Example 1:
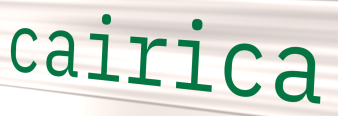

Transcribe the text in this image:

cairica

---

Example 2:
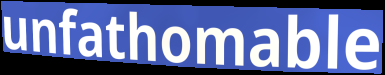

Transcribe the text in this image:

unfathomable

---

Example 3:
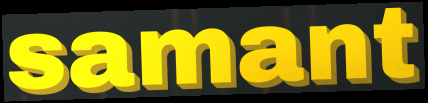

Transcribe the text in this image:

samant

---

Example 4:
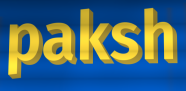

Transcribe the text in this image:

paksh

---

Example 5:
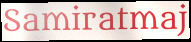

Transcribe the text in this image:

Samiratmaj